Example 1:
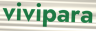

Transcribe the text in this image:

vivipara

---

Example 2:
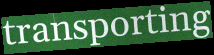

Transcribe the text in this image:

transporting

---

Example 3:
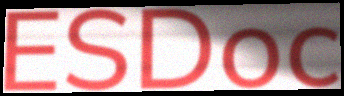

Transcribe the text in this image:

ESDoc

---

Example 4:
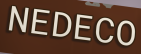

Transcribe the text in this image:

NEDECO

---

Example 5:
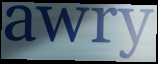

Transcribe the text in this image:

awry